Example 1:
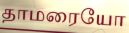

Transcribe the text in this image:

தாமரையோ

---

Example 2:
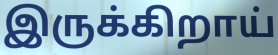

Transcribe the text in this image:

இருக்கிறாய்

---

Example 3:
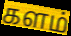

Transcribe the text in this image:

களம்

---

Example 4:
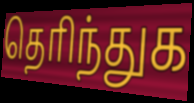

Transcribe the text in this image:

தெரிந்துக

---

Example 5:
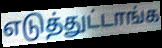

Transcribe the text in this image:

எடுத்துட்டாங்க